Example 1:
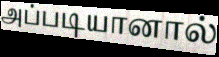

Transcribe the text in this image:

அப்படியானால்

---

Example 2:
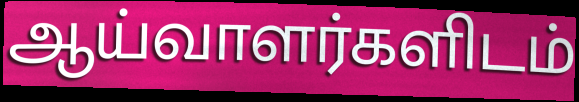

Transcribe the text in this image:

ஆய்வாளர்களிடம்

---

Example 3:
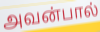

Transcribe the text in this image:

அவன்பால்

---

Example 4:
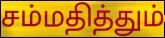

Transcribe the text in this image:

சம்மதித்தும்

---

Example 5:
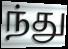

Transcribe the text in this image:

ந்து